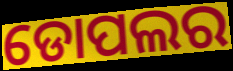
ଡୋପଲର